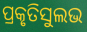
ପ୍ରକୃତିସୁଲଭ